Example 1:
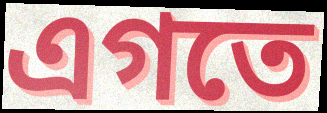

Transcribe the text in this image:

এগতে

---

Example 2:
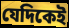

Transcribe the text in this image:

যেদিকেই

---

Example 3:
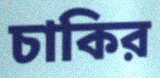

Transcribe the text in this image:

চাকির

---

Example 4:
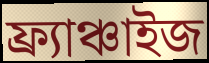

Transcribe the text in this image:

ফ্র্যাঞ্চাইজ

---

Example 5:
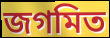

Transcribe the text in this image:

জগমিত